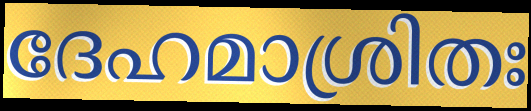
ദേഹമാശ്രിതഃ